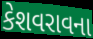
કેશવરાવના